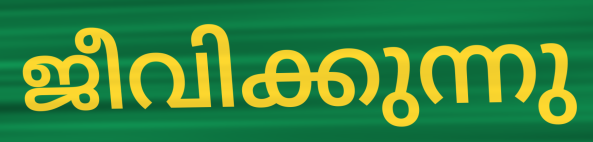
ജീവിക്കുന്നു